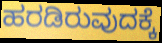
ಹರಡಿರುವುದಕ್ಕೆ